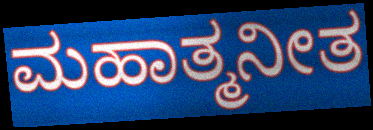
ಮಹಾತ್ಮನೀತ